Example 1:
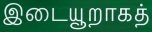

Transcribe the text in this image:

இடையூறாகத்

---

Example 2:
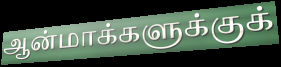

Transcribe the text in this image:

ஆன்மாக்களுக்குக்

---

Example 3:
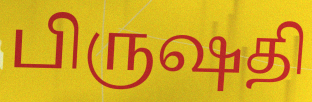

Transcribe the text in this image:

பிருஷதி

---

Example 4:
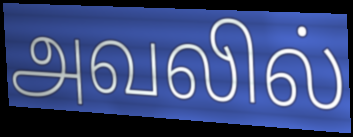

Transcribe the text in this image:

அவலில்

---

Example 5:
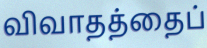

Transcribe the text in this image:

விவாதத்தைப்